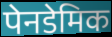
पेनडेमिक